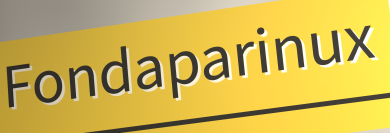
Fondaparinux